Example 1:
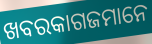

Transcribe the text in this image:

ଖବରକାଗଜମାନେ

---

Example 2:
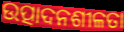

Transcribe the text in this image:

ଉତ୍ପାଦନଶୀଳତା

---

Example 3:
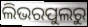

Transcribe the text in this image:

ଲିଭରପୁଲରୁ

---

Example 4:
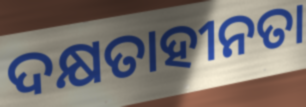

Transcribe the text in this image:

ଦକ୍ଷତାହୀନତା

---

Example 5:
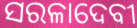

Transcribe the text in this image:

ସରଳାଦେବୀ